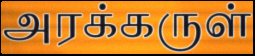
அரக்கருள்